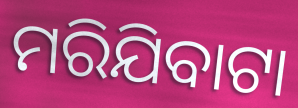
ମରିଯିବାଟା